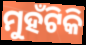
ମୁହଁଟିକି